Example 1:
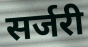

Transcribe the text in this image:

सर्जरी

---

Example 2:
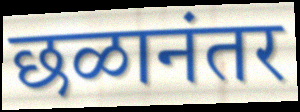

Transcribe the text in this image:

छळानंतर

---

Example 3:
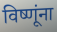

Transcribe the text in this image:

विष्णूंना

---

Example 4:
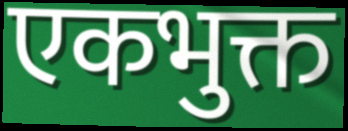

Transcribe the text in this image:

एकभुक्त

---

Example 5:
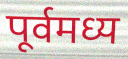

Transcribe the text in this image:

पूर्वमध्य